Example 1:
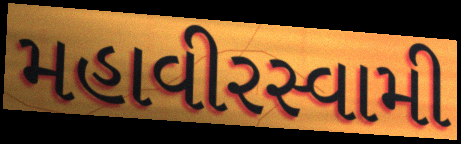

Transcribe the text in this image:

મહાવીરસ્વામી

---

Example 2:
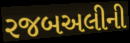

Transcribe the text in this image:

રજબઅલીની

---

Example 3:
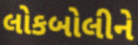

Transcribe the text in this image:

લોકબોલીને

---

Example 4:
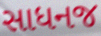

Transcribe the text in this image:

સાધનજ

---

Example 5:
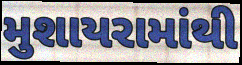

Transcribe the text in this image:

મુશાયરામાંથી